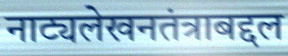
नाट्यलेखनतंत्राबद्दल